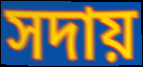
সদায়